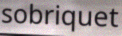
sobriquet